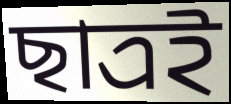
ছাত্রই